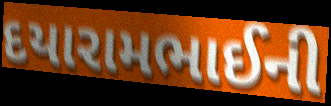
દયારામભાઈની